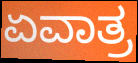
ಏವಾತ್ರ